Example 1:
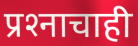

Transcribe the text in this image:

प्रश्नाचाही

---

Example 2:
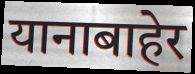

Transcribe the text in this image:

यानाबाहेर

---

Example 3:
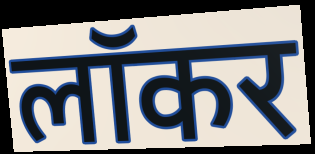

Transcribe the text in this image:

लॉकर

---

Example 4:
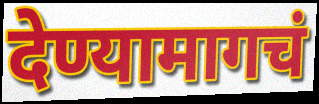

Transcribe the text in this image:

देण्यामागचं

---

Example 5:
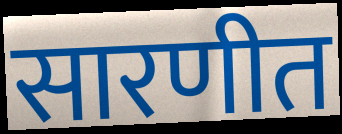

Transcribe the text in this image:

सारणीत